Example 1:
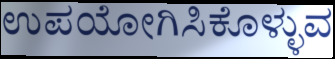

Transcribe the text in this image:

ಉಪಯೋಗಿಸಿಕೊಳ್ಳುವ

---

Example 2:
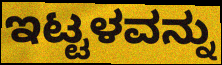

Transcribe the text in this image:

ಇಟ್ಟಳವನ್ನು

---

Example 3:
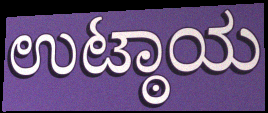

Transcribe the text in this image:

ಉಟ್ಠಾಯ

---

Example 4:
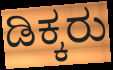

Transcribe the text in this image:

ಡಿಕ್ಕರು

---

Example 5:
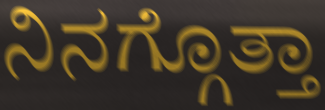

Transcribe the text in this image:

ನಿನಗ್ಗೊತ್ತಾ